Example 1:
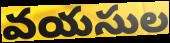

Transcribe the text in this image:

వయసుల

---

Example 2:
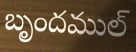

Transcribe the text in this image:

బృందముల్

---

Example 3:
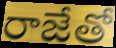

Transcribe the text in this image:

రాజేతో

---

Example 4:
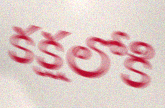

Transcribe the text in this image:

కక్షలోకి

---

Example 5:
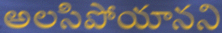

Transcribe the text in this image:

అలసిపోయానని